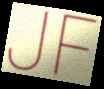
JF